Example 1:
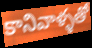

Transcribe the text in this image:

కానివాళ్ళతో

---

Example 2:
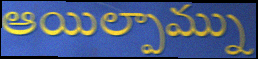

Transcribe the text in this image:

ఆయిల్పామ్ను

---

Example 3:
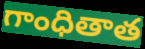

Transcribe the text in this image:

గాంధితాత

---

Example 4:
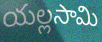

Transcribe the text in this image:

యల్లసామి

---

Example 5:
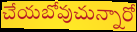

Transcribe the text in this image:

చేయబోవుచున్నారో